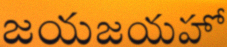
జయజయహో